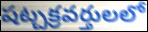
షట్చక్రవర్తులలో